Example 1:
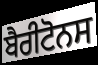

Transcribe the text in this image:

ਬੈਰੀਟੋਨਸ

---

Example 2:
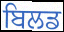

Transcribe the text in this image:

ਬਿਲਡ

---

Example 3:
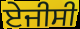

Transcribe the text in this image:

ਏਜੀਸੀ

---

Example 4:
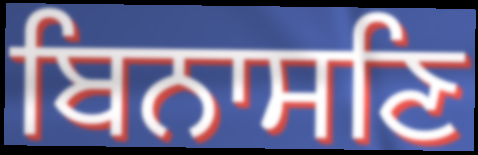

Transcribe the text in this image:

ਬਿਨਾਸਣਿ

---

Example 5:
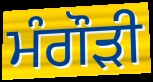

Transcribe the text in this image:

ਮੰਗੌੜੀ